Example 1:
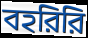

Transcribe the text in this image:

বহরিরি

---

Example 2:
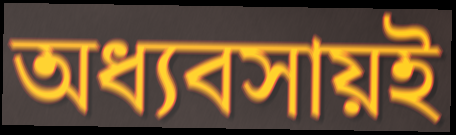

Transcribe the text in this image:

অধ্যবসায়ই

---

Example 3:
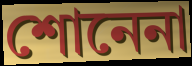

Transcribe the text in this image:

শোনেনা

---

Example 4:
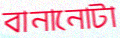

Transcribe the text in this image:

বানানোটা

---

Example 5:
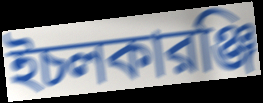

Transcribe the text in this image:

ইচলকারঞ্জি